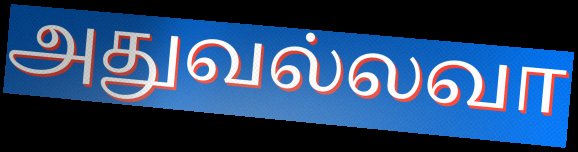
அதுவல்லவா